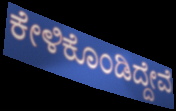
ಕೇಳಿಕೊಂಡಿದ್ದೇವೆ